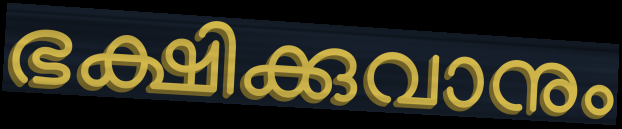
ഭക്ഷിക്കുവാനും